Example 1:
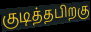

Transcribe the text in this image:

குடித்தபிறகு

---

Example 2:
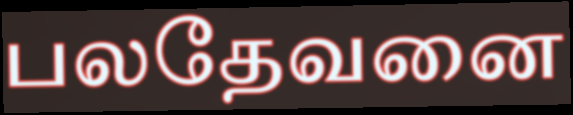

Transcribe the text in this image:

பலதேவனை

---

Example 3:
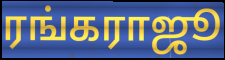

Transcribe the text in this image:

ரங்கராஜூ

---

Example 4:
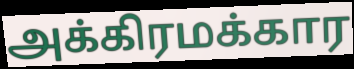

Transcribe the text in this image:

அக்கிரமக்கார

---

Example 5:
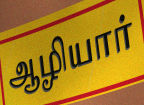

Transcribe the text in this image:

ஆழியார்